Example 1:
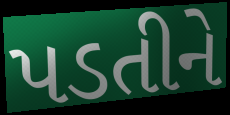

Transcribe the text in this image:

પડતીને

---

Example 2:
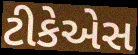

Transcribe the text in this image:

ટીકેએસ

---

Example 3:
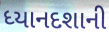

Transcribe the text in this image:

ધ્યાનદશાની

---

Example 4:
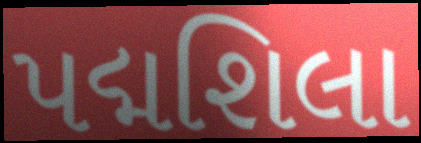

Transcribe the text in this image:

પદ્મશિલા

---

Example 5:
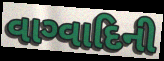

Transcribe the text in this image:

વાગ્વાદિની